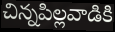
చిన్నపిల్లవాడికి